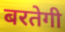
बरतेगी